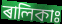
ৰালিকাঃ